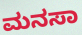
ಮನಸಾ